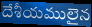
దేశీయములైన